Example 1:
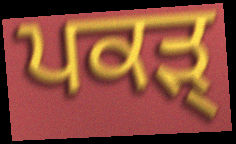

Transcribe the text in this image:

ਪਕੜ੍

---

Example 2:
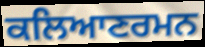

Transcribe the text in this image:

ਕਲਿਆਣਰਮਨ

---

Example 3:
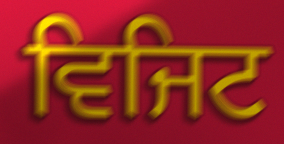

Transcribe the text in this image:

ਵਿਜਿਟ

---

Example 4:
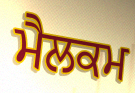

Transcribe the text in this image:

ਮੈਲਕਮ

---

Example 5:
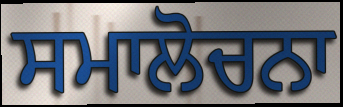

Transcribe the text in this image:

ਸਮਾਲੋਚਨਾ